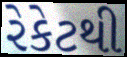
રેકેટથી